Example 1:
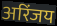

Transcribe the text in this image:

अरिंजय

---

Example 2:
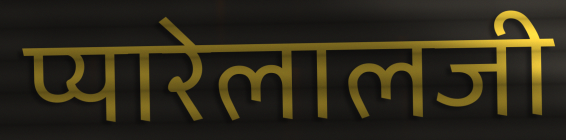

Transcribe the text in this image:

प्यारेलालजी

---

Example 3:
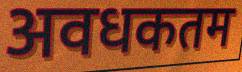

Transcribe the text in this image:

अवधकतम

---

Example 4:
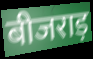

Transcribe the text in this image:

बीजराड़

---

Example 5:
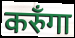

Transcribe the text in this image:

करुँगा